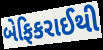
બેફિકરાઈથી